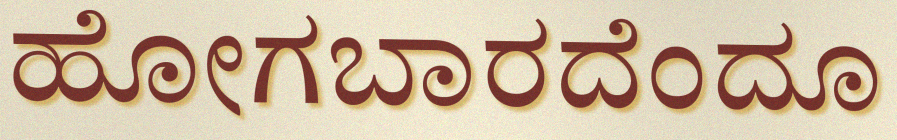
ಹೋಗಬಾರದೆಂದೂ